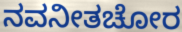
ನವನೀತಚೋರ